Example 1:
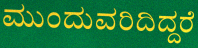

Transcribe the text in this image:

ಮುಂದುವರಿದಿದ್ದರೆ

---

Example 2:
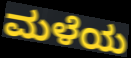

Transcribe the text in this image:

ಮಳೆಯ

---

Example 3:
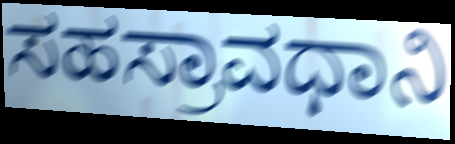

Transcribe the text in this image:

ಸಹಸ್ರಾವಧಾನಿ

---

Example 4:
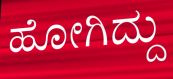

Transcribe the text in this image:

ಹೋಗಿದ್ದು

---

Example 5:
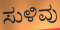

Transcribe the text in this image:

ಸುಳಿವು